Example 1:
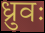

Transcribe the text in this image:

ध्रुवः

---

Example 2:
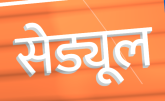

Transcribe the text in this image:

सेड्यूल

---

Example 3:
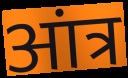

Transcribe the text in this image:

आंत्र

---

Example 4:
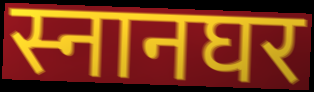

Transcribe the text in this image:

स्नानघर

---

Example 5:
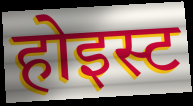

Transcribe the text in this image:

होइस्ट